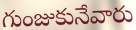
గుంజుకునేవారు